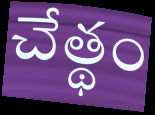
చేత్థం